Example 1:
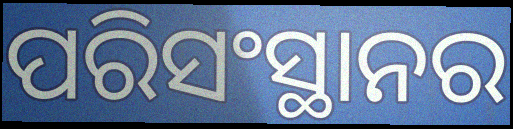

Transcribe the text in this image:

ପରିସଂସ୍ଥାନର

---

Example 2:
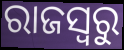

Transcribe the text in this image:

ରାଜସ୍ୱରୁ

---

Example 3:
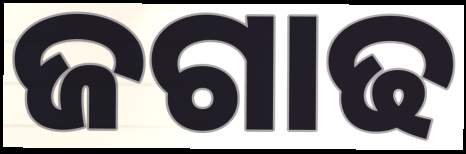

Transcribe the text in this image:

ଜଗାଢ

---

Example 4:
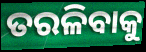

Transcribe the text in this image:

ତରଳିବାକୁ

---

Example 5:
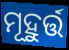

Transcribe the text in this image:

ମୂହୁର୍ତ୍ତ